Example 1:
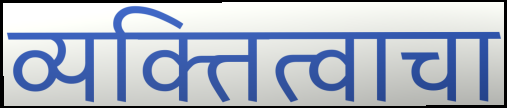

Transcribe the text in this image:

व्यक्तित्वाचा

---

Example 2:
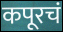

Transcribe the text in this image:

कपूरचं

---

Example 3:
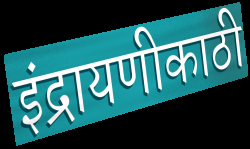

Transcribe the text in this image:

इंद्रायणीकाठी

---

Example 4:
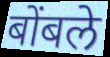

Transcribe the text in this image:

बोंबले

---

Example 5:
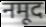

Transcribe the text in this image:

नमूद